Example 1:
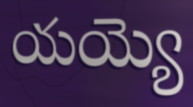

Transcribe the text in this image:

యయ్యె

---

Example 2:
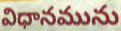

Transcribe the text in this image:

విధానమును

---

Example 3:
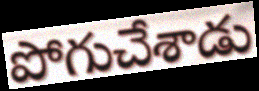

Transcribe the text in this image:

పోగుచేశాడు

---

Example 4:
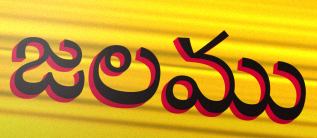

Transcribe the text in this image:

జలము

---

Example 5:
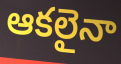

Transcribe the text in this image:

ఆకలైనా